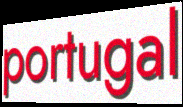
portugal